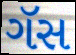
ગૅસ